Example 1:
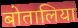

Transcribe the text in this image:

बोतालिया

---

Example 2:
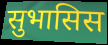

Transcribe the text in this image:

सुभासिस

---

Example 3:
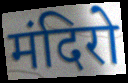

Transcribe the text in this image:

मंदिरो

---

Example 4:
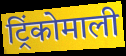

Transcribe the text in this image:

ट्रिंकोमाली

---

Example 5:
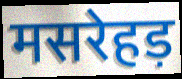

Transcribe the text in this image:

मसरेहड़